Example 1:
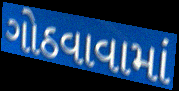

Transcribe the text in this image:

ગોઠવાવામાં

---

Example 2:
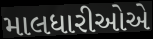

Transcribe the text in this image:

માલધારીઓએ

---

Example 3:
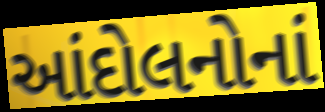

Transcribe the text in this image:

આંદોલનોનાં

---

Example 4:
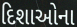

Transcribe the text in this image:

દિશાઓના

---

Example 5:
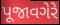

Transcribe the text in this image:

પૂજાવગેરે